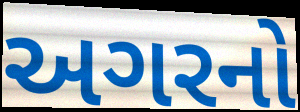
અગરનો